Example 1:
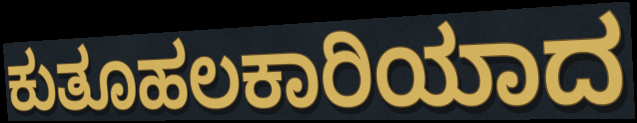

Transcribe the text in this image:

ಕುತೂಹಲಕಾರಿಯಾದ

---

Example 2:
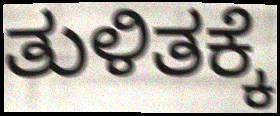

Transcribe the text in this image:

ತುಳಿತಕ್ಕೆ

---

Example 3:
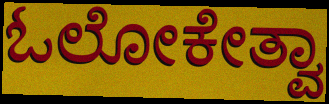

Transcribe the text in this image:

ಓಲೋಕೇತ್ವಾ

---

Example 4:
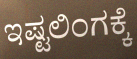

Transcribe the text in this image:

ಇಷ್ಟಲಿಂಗಕ್ಕೆ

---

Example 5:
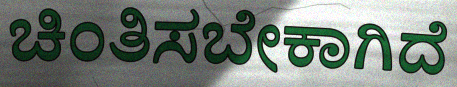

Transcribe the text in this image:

ಚಿಂತಿಸಬೇಕಾಗಿದೆ